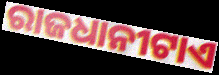
ରାଜଧାନୀଟାଏ